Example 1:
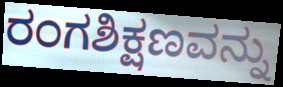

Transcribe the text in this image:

ರಂಗಶಿಕ್ಷಣವನ್ನು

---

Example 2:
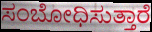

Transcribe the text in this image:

ಸಂಬೋಧಿಸುತ್ತಾರೆ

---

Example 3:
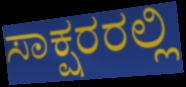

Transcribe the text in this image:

ಸಾಕ್ಷರರಲ್ಲಿ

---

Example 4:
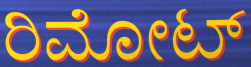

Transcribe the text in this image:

ರಿಮೋಟ್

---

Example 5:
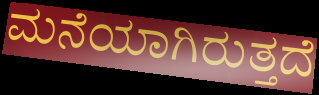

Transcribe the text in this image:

ಮನೆಯಾಗಿರುತ್ತದೆ